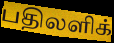
பதிலளிக்